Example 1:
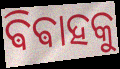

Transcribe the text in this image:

ଵିଵାହକୁ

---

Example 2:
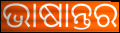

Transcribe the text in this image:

ଭାଷାନ୍ତର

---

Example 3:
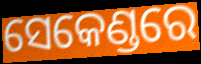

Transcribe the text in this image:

ସେକେଣ୍ଡରେ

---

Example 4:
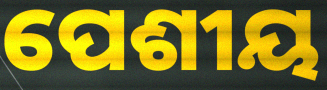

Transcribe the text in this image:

ପେଶୀୟ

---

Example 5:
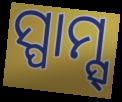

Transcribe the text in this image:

ସ୍ପାମ୍ସ୍